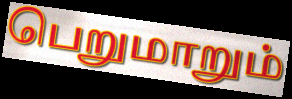
பெறுமாறும்